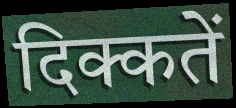
दिक्कतें